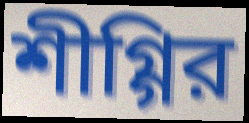
শীগ্গির